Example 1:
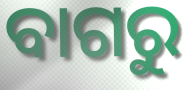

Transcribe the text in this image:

ବାଗରୁ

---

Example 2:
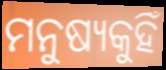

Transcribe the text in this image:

ମନୁଷ୍ୟକୁହିଁ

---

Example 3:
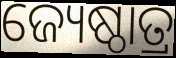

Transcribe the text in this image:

ଜ୍ୟେଷ୍ଠାତ୍ର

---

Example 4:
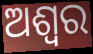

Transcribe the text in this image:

ଅଶ୍ୱର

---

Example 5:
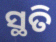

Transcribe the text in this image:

ସ୍ଥତି